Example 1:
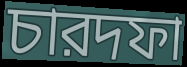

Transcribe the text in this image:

চারদফা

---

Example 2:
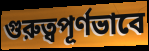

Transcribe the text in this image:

গুরুত্বপূর্ণভাবে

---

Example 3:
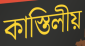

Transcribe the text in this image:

কাস্তিলীয়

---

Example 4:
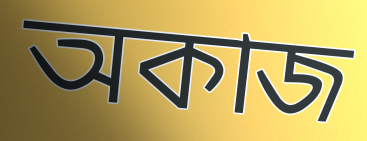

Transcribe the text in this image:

অকাজ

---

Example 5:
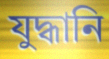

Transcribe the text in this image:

যুদ্ধানি